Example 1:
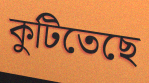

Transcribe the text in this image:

কুটিতেছে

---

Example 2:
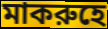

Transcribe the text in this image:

মাকরুহে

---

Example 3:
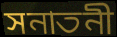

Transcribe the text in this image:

সনাতনী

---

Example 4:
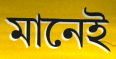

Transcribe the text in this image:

মানেই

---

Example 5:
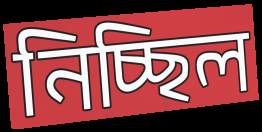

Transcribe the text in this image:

নিচ্ছিল